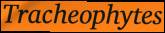
Tracheophytes